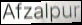
Afzalpur